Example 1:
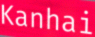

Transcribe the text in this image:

Kanhai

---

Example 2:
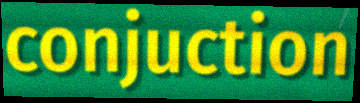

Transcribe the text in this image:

conjuction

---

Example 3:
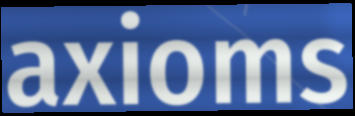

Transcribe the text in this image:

axioms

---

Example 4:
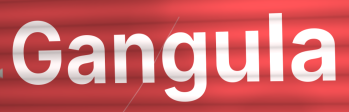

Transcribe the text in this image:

Gangula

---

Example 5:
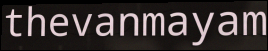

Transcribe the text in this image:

thevanmayam